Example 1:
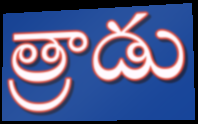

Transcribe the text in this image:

త్రాడు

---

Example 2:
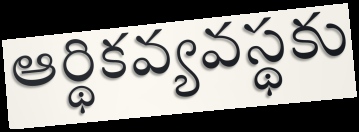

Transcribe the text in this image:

ఆర్థికవ్యవస్థకు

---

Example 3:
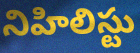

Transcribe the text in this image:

నిహిలిస్టు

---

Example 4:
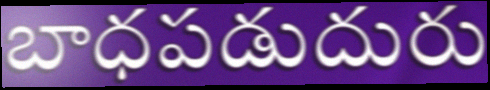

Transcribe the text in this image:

బాధపడుదురు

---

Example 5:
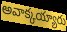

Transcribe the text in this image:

అవాక్కయ్యారు